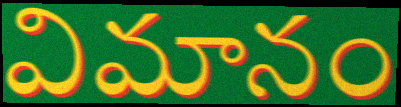
విమానం